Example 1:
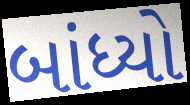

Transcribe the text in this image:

બાંધ્યો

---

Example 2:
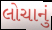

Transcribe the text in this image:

લોચાનું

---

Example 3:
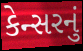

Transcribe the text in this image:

કેન્સરનું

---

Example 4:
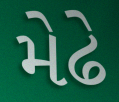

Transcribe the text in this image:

મેઢે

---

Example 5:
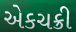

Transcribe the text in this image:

એકચક્રી